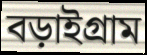
বড়াইগ্রাম